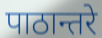
पाठान्तरे